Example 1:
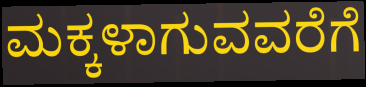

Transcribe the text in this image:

ಮಕ್ಕಳಾಗುವವರೆಗೆ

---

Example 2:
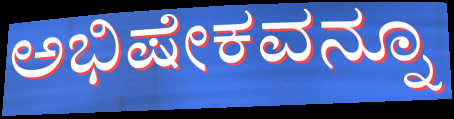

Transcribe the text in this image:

ಅಭಿಷೇಕವನ್ನೂ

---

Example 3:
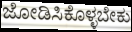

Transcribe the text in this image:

ಜೋಡಿಸಿಕೊಳ್ಳಬೇಕು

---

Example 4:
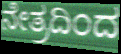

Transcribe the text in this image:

ನೇತ್ರದಿಂದ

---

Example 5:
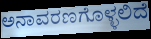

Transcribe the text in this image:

ಅನಾವರಣಗೊಳ್ಳಲಿದೆ